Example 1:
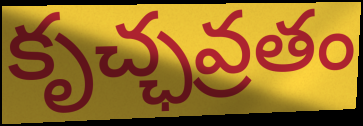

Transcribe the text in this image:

కృచ్ఛవ్రతం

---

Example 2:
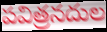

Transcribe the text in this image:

పవిత్రనదుల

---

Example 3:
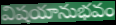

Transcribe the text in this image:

విషయానుభవం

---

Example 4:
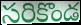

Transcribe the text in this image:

సరికొండ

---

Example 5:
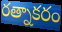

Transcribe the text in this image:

రత్నాకరం